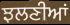
ਝਲਣੀਆਂ